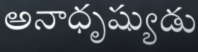
అనాధృష్యుడు